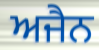
ਅਜੈਨ